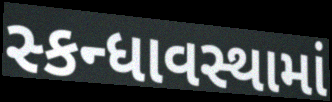
સ્કન્ધાવસ્થામાં